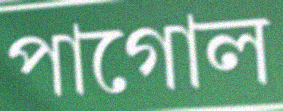
পাগোল